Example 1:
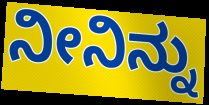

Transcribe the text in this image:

ನೀನಿನ್ನು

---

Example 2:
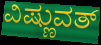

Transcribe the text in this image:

ವಿಷ್ಣುವತ್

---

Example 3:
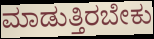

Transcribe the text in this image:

ಮಾಡುತ್ತಿರಬೇಕು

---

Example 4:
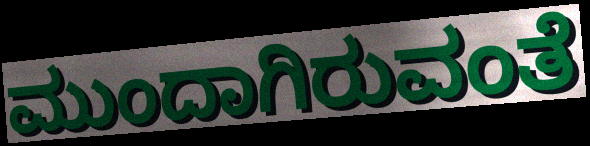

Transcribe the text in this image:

ಮುಂದಾಗಿರುವಂತೆ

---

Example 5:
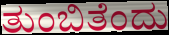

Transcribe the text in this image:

ತುಂಬಿತೆಂದು